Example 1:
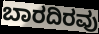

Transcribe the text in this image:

ಬಾರದಿರವು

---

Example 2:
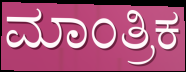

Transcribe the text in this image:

ಮಾಂತ್ರಿಕ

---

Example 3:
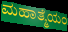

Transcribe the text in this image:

ಮಹಾತ್ಮೆಯಂ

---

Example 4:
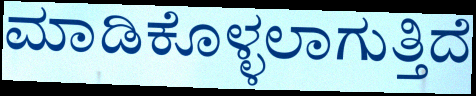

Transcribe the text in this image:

ಮಾಡಿಕೊಳ್ಳಲಾಗುತ್ತಿದೆ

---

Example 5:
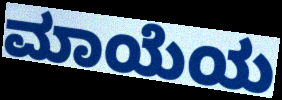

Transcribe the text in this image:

ಮಾಯೆಯ